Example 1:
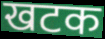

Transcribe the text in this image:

खटक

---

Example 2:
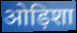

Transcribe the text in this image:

ओड़िशा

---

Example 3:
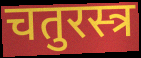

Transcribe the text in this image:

चतुरस्त्र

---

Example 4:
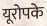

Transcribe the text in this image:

यूरोपके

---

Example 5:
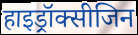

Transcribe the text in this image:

हाइड्रॉक्सीजिन